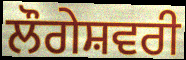
ਲੌਗੇਸ਼ਵਰੀ